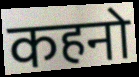
कहनो